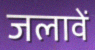
जलावें